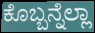
ಕೊಬ್ಬನ್ನೆಲ್ಲಾ